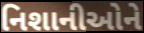
નિશાનીઓને